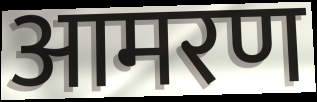
आमरण